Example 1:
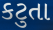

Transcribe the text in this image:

કટુતા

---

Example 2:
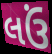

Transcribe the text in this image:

લઉં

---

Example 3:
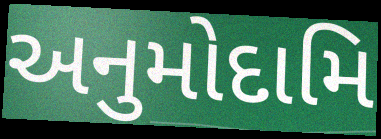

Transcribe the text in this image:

અનુમોદામિ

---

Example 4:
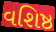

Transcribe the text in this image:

વશિષ્ઠ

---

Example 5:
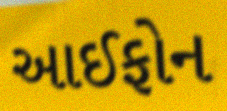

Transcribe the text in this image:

આઈફોન